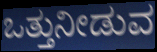
ಒತ್ತುನೀಡುವ